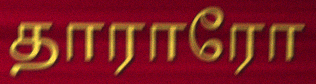
தாராரோ